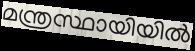
മന്ത്രസ്ഥായിയിൽ